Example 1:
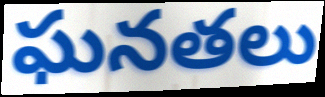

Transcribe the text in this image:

ఘనతలు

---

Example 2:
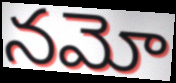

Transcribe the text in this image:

నమో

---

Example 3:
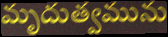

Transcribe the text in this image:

మృదుత్వమును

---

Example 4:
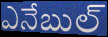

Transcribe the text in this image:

ఎనేబుల్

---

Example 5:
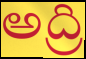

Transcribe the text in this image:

అద్రి